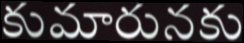
కుమారునకు